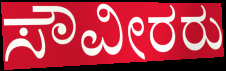
ಸೌವೀರರು